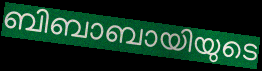
ബിബാബായിയുടെ